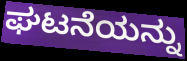
ಘಟನೆಯನ್ನು